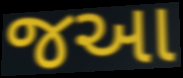
જઆ